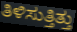
ತಿಳಿಸುತ್ತಿತ್ತು